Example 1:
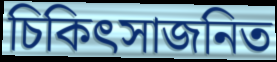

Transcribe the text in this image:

চিকিৎসাজনিত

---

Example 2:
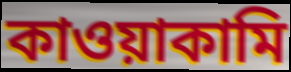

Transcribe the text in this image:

কাওয়াকামি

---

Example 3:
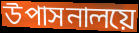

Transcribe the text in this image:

উপাসনালয়ে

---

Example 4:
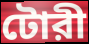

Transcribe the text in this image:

টোরী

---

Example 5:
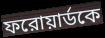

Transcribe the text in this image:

ফরোয়ার্ডকে